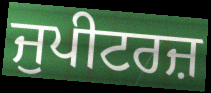
ਜੁਪੀਟਰਜ਼